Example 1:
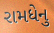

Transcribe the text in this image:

રામધેનુ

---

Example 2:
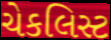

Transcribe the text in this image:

ચેકલિસ્ટ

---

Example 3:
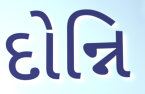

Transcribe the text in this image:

દોન્નિ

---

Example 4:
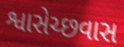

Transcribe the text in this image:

શ્વાસેચ્છવાસ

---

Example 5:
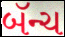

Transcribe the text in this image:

બૅન્ચ